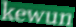
kewun